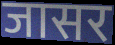
जासर